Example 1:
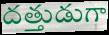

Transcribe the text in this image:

దత్తుడుగా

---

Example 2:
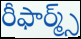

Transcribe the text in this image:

రీఫార్మ్స్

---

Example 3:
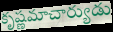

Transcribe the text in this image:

కృష్ణమాచార్యుడు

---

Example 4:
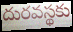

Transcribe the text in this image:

దురవస్థకు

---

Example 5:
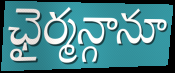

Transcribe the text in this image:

ఛైర్మన్గానూ